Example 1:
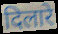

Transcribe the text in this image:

दिलारे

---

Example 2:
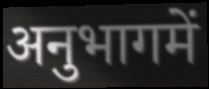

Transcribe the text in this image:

अनुभागमें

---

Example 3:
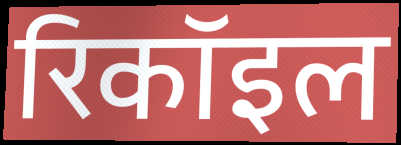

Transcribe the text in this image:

रिकॉइल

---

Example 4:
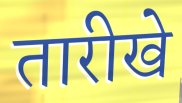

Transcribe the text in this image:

तारीखे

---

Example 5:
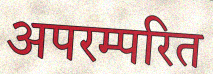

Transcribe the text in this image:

अपरम्परित